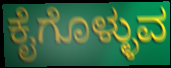
ಕೈಗೊಳ್ಳುವ